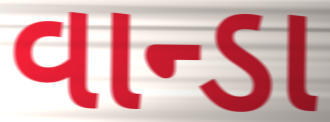
વાન્ડા